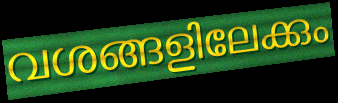
വശങ്ങളിലേക്കും